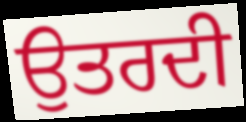
ਉਤਰਦੀ